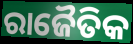
ରାଜୈତିକ